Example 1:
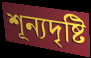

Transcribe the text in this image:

শূন্যদৃষ্টি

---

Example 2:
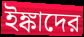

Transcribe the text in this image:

ইঙ্কাদের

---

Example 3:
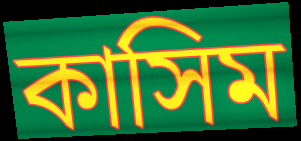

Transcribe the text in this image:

কাসিম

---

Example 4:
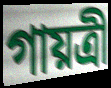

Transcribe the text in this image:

গায়ত্রী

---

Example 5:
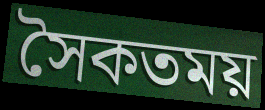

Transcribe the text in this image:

সৈকতময়